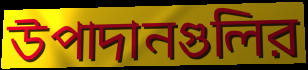
উপাদানগুলির